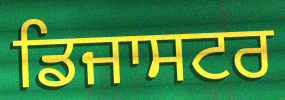
ਡਿਜਾਸਟਰ